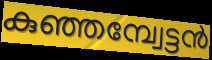
കുഞ്ഞമ്പ്വേട്ടൻ